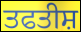
ਤਫਤੀਸ਼